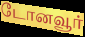
டோனவூர்